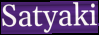
Satyaki